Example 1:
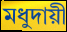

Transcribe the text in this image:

মধুদায়ী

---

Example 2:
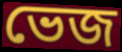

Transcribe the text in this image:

ভেজ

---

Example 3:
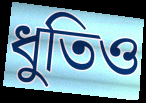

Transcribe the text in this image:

ধুতিও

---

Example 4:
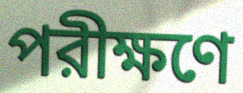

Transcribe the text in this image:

পরীক্ষণে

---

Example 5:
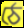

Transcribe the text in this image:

ঠে